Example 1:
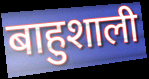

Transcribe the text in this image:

बाहुशाली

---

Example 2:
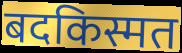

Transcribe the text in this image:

बदकिस्मत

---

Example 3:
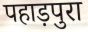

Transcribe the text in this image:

पहाड़पुरा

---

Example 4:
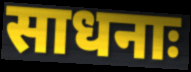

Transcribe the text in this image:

साधनाः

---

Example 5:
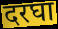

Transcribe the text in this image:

दरघा